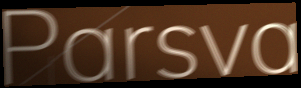
Parsva